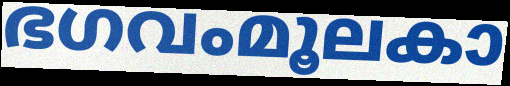
ഭഗവംമൂലകാ